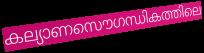
കല്യാണസൌഗന്ധികത്തിലെ